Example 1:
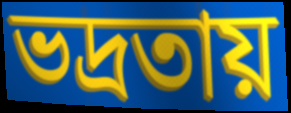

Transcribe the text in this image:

ভদ্রতায়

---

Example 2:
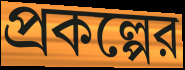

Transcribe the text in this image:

প্রকল্পের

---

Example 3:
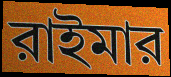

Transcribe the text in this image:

রাইমার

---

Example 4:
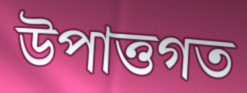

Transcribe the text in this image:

উপাত্তগত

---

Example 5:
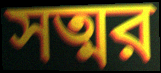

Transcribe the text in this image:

সত্মর